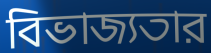
বিভাজ্যতার